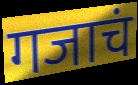
गजाचं